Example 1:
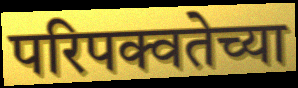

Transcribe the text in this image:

परिपक्वतेच्या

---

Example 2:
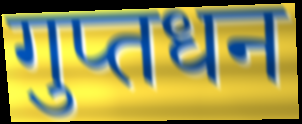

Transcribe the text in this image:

गुप्तधन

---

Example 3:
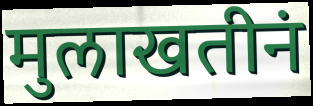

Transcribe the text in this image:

मुलाखतीनं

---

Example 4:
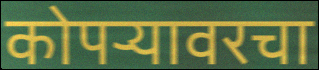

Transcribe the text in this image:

कोपऱ्यावरचा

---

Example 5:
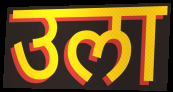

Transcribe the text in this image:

उला